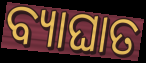
ବ୍ୟାଘାତ